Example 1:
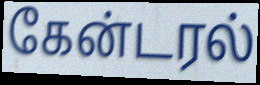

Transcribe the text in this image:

கேன்டரல்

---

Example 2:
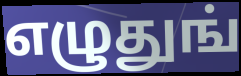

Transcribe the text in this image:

எழுதுங்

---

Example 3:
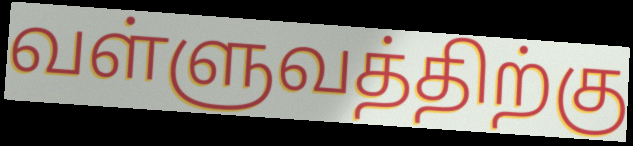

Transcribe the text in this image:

வள்ளுவத்திற்கு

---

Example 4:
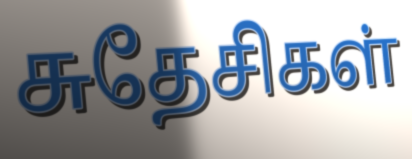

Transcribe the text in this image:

சுதேசிகள்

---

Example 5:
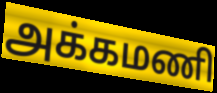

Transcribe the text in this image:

அக்கமணி